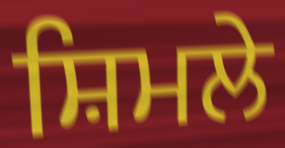
ਸ਼ਿਮਲੇ